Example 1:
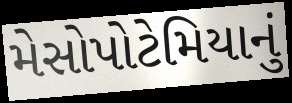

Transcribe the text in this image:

મેસોપોટેમિયાનું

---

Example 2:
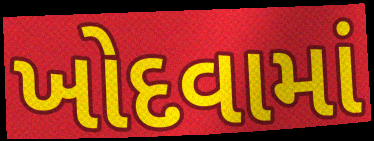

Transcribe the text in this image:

ખોદવામાં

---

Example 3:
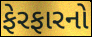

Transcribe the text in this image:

ફેરફારનો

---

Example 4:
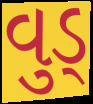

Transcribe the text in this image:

વુડ્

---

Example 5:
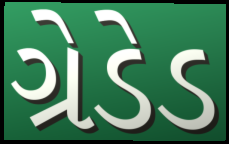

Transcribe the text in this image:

ગ્રેડેડ